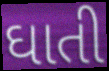
ઘાતી